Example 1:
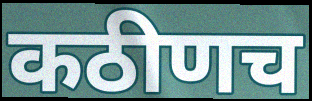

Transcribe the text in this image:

कठीणच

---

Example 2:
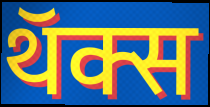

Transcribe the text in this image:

थॅक्स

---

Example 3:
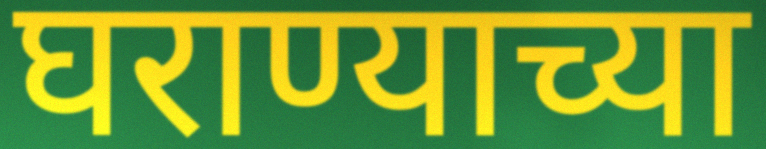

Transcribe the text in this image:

घराण्याच्या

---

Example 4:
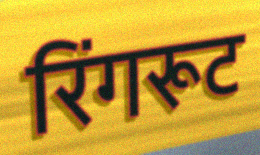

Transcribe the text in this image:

रिंगरूट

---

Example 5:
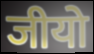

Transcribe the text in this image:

जीयो